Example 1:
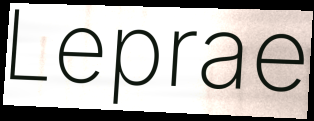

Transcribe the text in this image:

Leprae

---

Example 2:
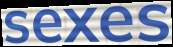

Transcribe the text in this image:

sexes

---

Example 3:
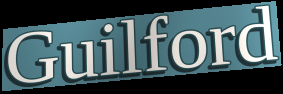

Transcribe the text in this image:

Guilford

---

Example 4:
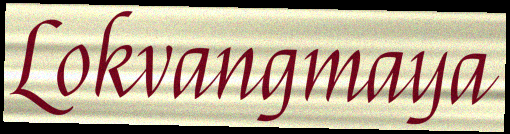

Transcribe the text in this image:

Lokvangmaya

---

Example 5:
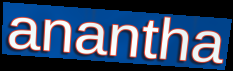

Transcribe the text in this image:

anantha